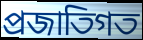
প্রজাতিগত